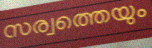
സര്വത്തെയും